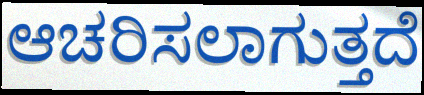
ಆಚರಿಸಲಾಗುತ್ತದೆ